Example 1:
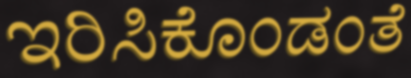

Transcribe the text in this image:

ಇರಿಸಿಕೊಂಡಂತೆ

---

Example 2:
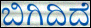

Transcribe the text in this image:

ಬಿಗಿದಿದೆ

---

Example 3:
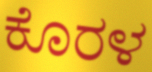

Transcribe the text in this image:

ಕೊರಳ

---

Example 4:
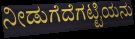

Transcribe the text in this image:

ನೀಡುಗೆದೆಗಟ್ಟಿಯನು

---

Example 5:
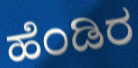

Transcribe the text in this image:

ಹೆಂಡಿರ